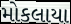
મોકલાયા